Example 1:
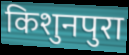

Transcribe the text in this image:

किशुनपुरा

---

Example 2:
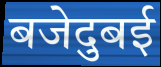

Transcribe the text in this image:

बजेदुबई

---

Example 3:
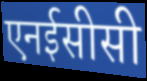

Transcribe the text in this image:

एनईसीसी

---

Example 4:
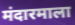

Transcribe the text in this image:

मंदारमाला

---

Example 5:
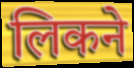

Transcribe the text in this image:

लिकने